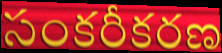
సంకరీకరణ